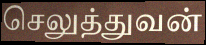
செலுத்துவன்